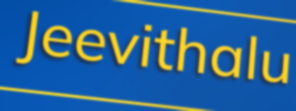
Jeevithalu